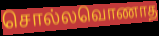
சொல்லவொணாத